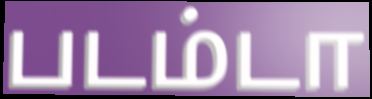
படம்டா